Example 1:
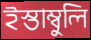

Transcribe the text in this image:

ইস্তাম্বুলি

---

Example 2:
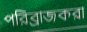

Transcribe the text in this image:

পরিব্রাজকরা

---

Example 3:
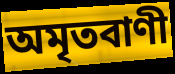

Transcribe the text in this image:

অমৃতবাণী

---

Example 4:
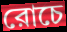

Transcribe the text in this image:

রোচে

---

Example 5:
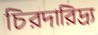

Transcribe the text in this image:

চিরদারিদ্র্য